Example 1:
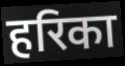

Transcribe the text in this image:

हरिका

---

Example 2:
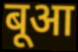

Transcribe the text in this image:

बूआ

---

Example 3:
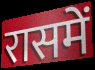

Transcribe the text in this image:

रासमें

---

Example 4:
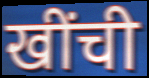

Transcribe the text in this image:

खींची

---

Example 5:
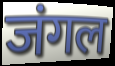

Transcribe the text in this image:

जंगल